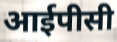
आईपीसी